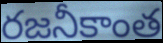
రజనీకాంత